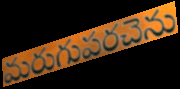
మరుగుపరచెను